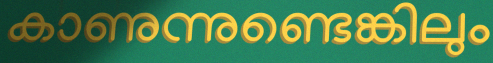
കാണുന്നുണ്ടെങ്കിലും